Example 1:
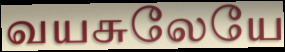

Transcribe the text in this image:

வயசுலேயே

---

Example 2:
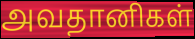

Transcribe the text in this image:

அவதானிகள்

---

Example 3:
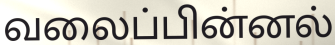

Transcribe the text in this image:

வலைப்பின்னல்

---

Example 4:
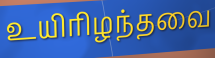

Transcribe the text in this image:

உயிரிழந்தவை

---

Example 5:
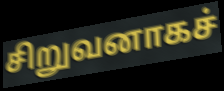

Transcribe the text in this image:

சிறுவனாகச்